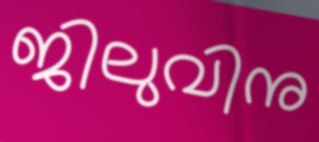
ജിലുവിനു